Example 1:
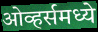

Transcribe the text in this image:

ओव्हर्समध्ये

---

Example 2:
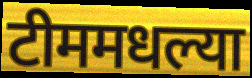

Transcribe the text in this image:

टीममधल्या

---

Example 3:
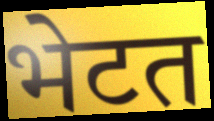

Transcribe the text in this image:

भेटत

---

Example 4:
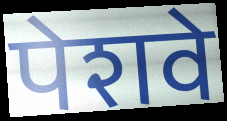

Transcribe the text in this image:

पेशवे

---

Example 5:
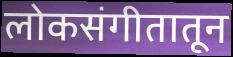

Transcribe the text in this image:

लोकसंगीतातून